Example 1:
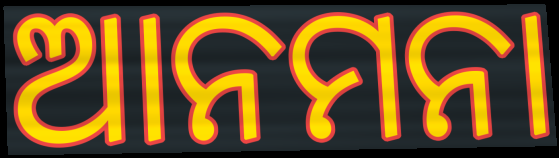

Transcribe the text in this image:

ଆନମନା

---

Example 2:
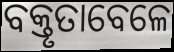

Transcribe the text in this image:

ବକ୍ତୃତାବେଳେ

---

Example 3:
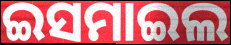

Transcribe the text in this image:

ଇସମାଇଲ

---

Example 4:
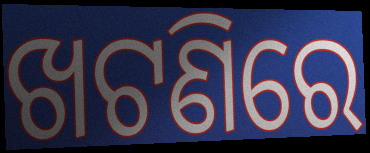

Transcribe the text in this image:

ଖଟଣିରେ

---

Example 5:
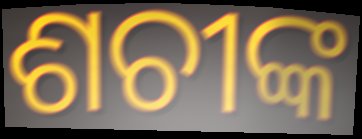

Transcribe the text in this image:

ଶଚୀଙ୍କ